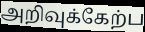
அறிவுக்கேற்ப